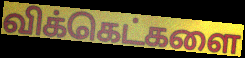
விக்கெட்களை